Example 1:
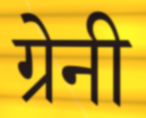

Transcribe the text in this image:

ग्रेनी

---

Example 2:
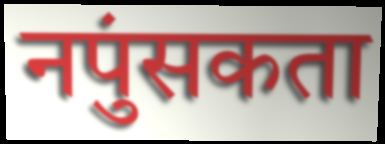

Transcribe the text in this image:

नपुंसकता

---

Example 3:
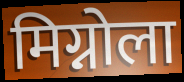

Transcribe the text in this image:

मिग्नोला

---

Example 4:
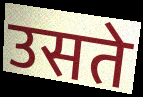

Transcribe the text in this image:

उसते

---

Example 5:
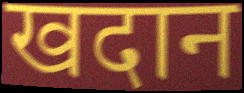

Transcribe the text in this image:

खदान